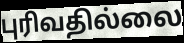
புரிவதில்லை